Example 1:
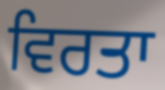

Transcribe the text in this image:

ਵਿਰਤਾ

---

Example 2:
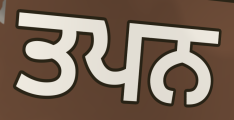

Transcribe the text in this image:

ਤਪਨ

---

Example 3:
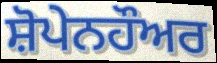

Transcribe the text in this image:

ਸ਼ੋਪੇਨਹੌਅਰ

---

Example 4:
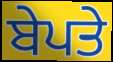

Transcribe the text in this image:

ਬੇਪਤੇ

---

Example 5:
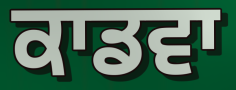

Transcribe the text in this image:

ਕਾਡਵਾ